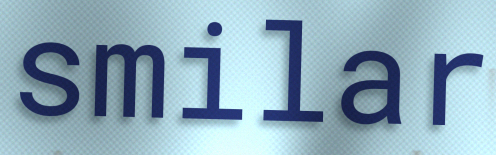
smilar